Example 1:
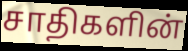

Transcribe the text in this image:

சாதிகளின்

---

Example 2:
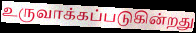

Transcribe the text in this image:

உருவாக்கப்படுகின்றது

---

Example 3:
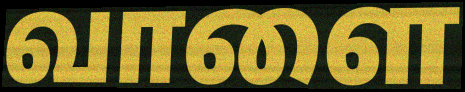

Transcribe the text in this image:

வாளை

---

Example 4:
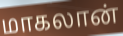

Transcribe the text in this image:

மாகலான்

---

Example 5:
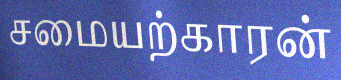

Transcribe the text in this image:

சமையற்காரன்